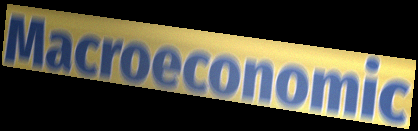
Macroeconomic